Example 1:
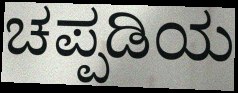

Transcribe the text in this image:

ಚಪ್ಪಡಿಯ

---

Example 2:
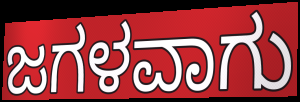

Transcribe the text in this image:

ಜಗಳವಾಗು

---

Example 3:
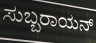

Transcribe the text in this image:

ಸುಬ್ಬರಾಯನ್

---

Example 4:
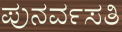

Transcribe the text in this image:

ಪುನರ್ವಸತಿ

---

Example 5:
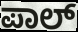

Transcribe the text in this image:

ಪಾಲ್